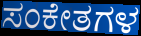
ಸಂಕೇತಗಳ